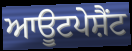
ਆਊਟਪੇਸ਼ੈਂਟ